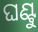
ଘଣ୍ଟୁ